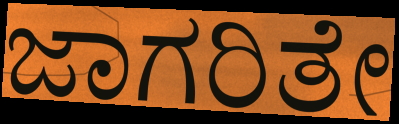
ಜಾಗರಿತೇ